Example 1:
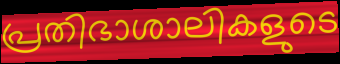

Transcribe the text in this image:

പ്രതിഭാശാലികളുടെ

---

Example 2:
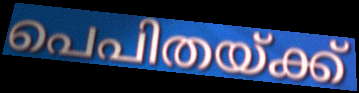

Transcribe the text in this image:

പെപിതയ്ക്ക്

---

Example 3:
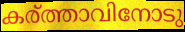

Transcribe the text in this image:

കര്ത്താവിനോടു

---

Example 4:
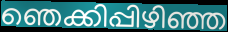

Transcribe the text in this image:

ഞെക്കിപ്പിഴിഞ്ഞ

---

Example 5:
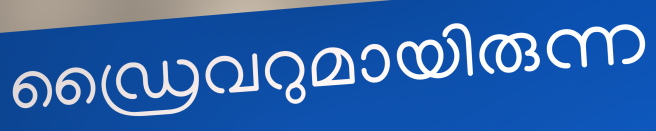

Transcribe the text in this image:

ഡ്രൈവറുമായിരുന്ന